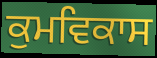
ਕੁਮਵਿਕਾਸ